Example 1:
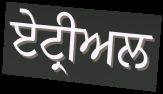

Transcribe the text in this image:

ਏਟ੍ਰੀਅਲ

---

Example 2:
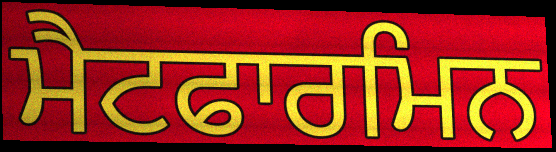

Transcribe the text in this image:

ਮੈਟਫਾਰਮਿਨ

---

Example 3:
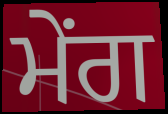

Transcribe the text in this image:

ਮੇਂਗ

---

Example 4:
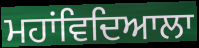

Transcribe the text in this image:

ਮਹਾਂਵਿਦਿਆਲਾ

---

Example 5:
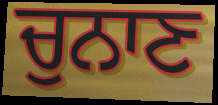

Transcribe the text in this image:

ਚੁਨਾਣ